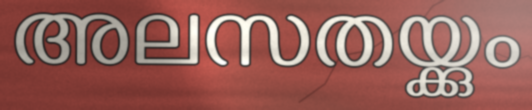
അലസതയ്ക്കും